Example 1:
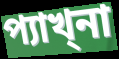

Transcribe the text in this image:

প্যাখ্না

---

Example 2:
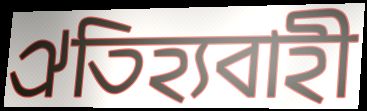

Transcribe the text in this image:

ঐতিহ্যবাহী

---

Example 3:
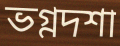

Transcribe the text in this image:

ভগ্নদশা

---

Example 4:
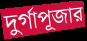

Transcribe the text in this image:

দুর্গাপূজার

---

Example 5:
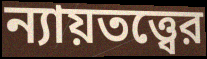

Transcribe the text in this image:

ন্যায়তত্ত্বের